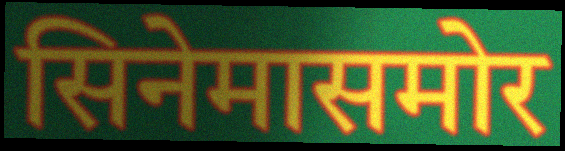
सिनेमासमोर